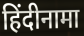
हिंदीनामा